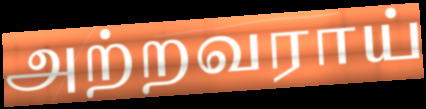
அற்றவராய்